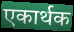
एकार्थक